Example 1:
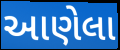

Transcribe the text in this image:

આણેલા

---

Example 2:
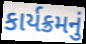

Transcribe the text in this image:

કાર્યક્રમનું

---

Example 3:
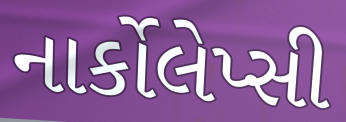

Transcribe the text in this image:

નાર્કોલેપ્સી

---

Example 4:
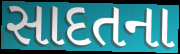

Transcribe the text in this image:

સાદતના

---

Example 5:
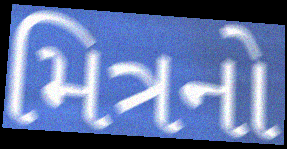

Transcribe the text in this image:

મિત્રનો